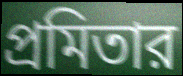
প্রমিতার